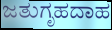
ಜತುಗೃಹದಾಹ